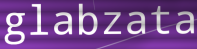
glabzata